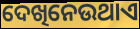
ଦେଖିନେଉଥାଏ